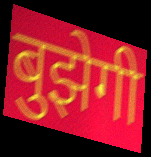
बुझेगी